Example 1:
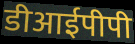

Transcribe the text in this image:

डीआईपीपी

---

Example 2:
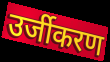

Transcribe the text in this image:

उर्जीकरण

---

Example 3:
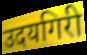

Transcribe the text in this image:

उदयगिरी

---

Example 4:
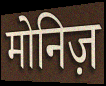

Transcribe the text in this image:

मोनिज़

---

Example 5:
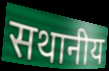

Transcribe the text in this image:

सथानीय